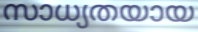
സാധ്യതയായ